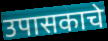
उपासकाचे